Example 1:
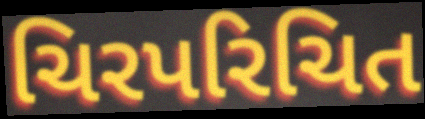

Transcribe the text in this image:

ચિરપરિચિત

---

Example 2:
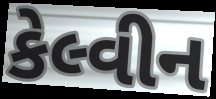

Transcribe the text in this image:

કેલ્વીન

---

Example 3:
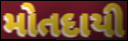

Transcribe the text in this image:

મોતદાયી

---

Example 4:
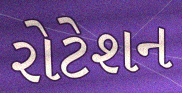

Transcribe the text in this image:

રોટેશન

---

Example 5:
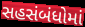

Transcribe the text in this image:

સહસંબંધોમાં